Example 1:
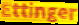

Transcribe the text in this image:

Ettinger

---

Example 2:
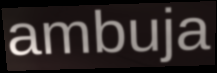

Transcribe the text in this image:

ambuja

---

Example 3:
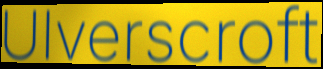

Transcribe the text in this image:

Ulverscroft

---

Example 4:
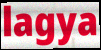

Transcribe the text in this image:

lagya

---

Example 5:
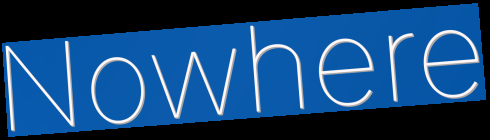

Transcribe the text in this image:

Nowhere